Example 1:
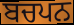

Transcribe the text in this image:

ਬਚਪਨ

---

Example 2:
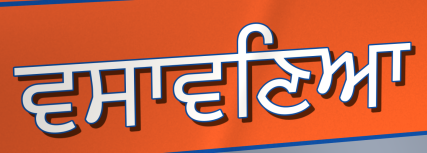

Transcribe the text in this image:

ਵਸਾਵਣਿਆ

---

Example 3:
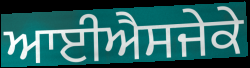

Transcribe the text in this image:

ਆਈਐਸਜੇਕੇ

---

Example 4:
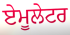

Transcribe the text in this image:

ਏਮੂਲੇਟਰ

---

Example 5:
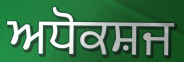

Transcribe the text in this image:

ਅਧੋਕਸ਼ਜ